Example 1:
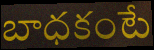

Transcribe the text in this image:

బాధకంటే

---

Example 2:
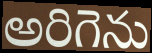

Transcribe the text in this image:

అరిగెను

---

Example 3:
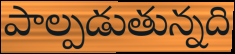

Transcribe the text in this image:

పాల్పడుతున్నది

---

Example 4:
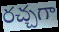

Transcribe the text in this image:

రచ్చగా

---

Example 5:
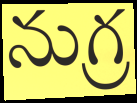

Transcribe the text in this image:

నుగ్ర